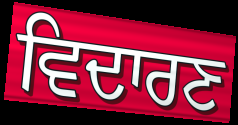
ਵਿਦਾਰਣ